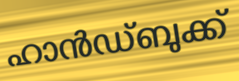
ഹാൻഡ്ബുക്ക്